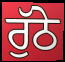
ਰੁੱਠੇ